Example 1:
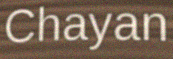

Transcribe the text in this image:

Chayan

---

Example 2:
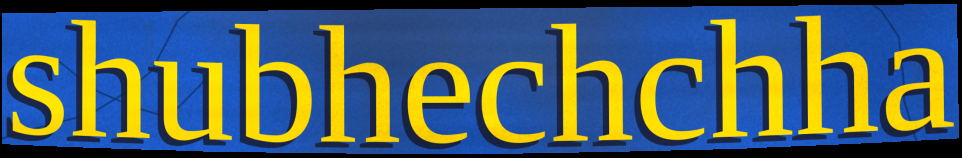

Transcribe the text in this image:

shubhechchha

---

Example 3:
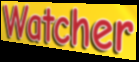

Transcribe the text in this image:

Watcher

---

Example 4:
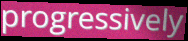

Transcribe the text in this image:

progressively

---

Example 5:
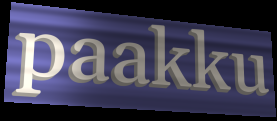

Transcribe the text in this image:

paakku